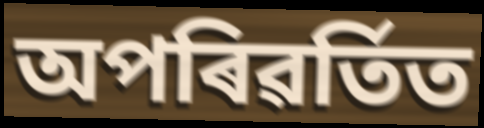
অপৰিৱৰ্তিত